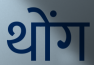
थोंग